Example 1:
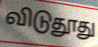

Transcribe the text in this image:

விடுதூது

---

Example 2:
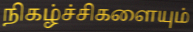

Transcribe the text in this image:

நிகழ்ச்சிகளையும்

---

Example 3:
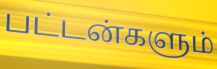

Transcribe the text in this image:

பட்டன்களும்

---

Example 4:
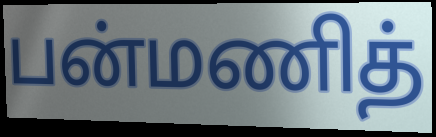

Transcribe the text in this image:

பன்மணித்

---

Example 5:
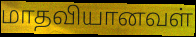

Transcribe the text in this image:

மாதவியானவள்